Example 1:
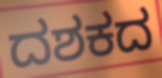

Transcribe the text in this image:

ದಶಕದ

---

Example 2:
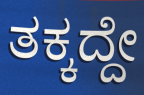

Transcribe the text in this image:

ತಕ್ಕದ್ದೇ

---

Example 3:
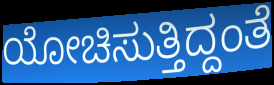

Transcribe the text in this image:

ಯೋಚಿಸುತ್ತಿದ್ದಂತೆ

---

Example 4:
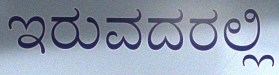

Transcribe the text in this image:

ಇರುವದರಲ್ಲಿ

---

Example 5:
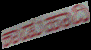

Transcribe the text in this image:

ಕಾಡುಹಾದಿ